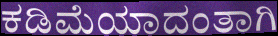
ಕಡಿಮೆಯಾದಂತಾಗಿ